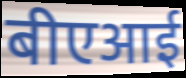
बीएआई